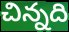
చిన్నది